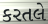
કરતલે